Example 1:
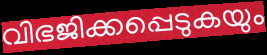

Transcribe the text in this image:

വിഭജിക്കപ്പെടുകയും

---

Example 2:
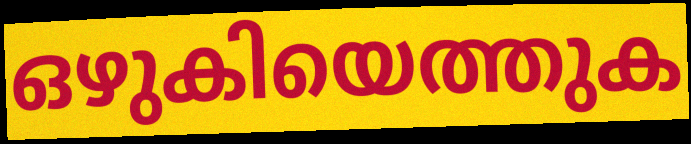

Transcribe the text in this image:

ഒഴുകിയെത്തുക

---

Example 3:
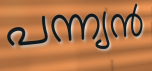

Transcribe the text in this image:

പന്ന്യൻ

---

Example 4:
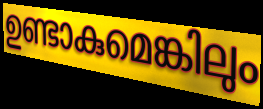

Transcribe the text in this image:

ഉണ്ടാകുമെങ്കിലും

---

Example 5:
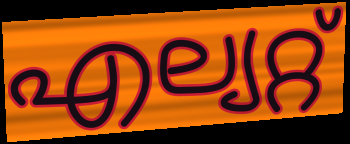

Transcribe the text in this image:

എല്യറ്റ്